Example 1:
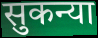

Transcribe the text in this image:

सुकन्या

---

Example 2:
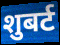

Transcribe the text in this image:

शुबर्ट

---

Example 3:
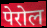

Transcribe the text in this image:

पेरोल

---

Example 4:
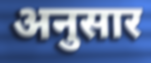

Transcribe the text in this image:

अनुसार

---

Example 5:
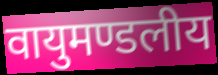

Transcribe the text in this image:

वायुमण्डलीय